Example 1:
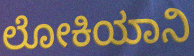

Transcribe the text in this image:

ಲೋಕಿಯಾನಿ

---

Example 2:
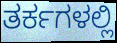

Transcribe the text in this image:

ತರ್ಕಗಳಲ್ಲಿ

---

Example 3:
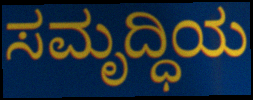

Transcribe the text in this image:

ಸಮೃದ್ಧಿಯ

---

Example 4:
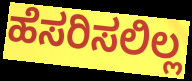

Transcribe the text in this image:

ಹೆಸರಿಸಲಿಲ್ಲ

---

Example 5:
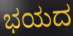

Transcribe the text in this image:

ಭಯದ